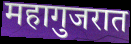
महागुजरात